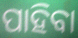
ପାହିବା